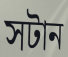
সটান